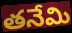
తనేమి